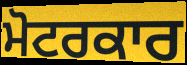
ਮੋਟਰਕਾਰ